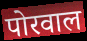
पोरवाल